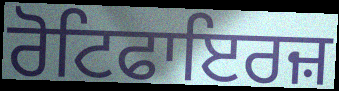
ਰੋਟਿਫਾਇਰਜ਼